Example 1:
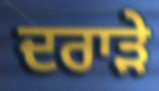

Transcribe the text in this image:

ਦਰਾੜੇ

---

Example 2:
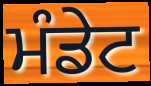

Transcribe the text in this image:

ਮੰਡੇਟ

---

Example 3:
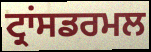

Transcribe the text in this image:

ਟ੍ਰਾਂਸਡਰਮਲ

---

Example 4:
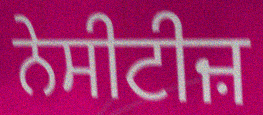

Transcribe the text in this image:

ਨੇਸੀਟੀਜ਼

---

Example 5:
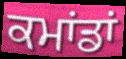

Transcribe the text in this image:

ਕਮਾਂਡਾਂ